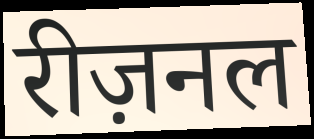
रीज़नल